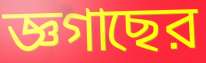
জ্ঞগাছের